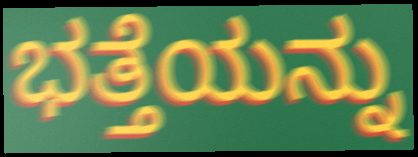
ಭತ್ತೆಯನ್ನು